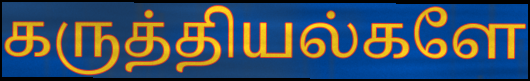
கருத்தியல்களே